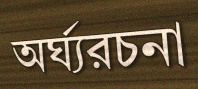
অর্ঘ্যরচনা